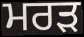
ਮਰੜ